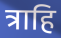
त्राहि